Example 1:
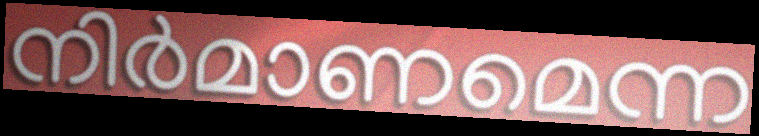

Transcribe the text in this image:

നിർമാണമെന്ന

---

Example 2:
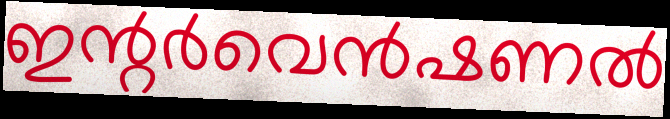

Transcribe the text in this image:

ഇന്റർവെൻഷണൽ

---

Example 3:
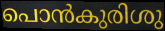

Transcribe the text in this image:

പൊൻകുരിശു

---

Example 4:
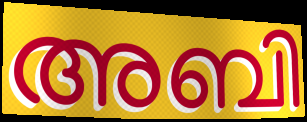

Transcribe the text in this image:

അബി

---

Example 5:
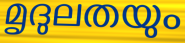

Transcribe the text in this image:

മൃദുലതയും